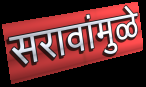
सरावांमुळे